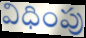
విధింపు